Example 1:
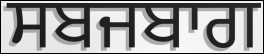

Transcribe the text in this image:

ਸਬਜਬਾਗ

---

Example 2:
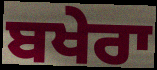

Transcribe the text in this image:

ਬਖੇਰਾ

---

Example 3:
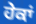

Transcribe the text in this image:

ਹੇਕਾਂ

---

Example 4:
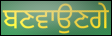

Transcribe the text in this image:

ਬਣਵਾਉਣਗੇ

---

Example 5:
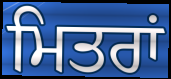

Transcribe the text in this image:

ਮਿਤਰਾਂ